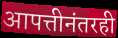
आपत्तीनंतरही